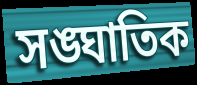
সঙ্ঘাতিক